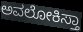
ಅವಲೋಕಿಸ್ತಾ